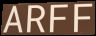
ARFF